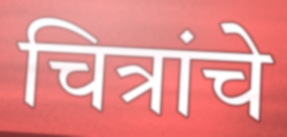
चित्रांचे